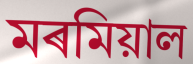
মৰমিয়াল